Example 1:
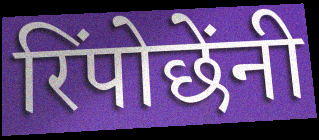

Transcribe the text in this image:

रिंपोछेंनी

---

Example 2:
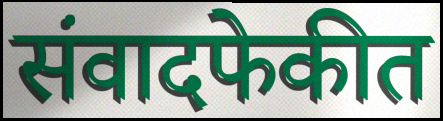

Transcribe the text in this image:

संवादफेकीत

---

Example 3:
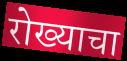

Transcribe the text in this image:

रोख्याचा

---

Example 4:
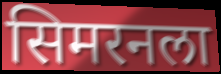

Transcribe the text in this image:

सिमरनला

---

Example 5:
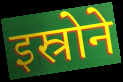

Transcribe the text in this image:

इस्रोने